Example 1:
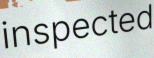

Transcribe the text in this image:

inspected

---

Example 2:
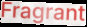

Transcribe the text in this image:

Fragrant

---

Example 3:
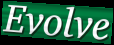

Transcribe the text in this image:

Evolve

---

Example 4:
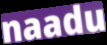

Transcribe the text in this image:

naadu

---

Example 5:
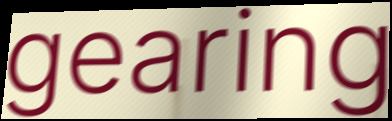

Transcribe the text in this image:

gearing